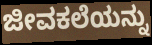
ಜೀವಕಲೆಯನ್ನು